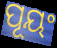
ପୂୟଂ